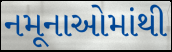
નમૂનાઓમાંથી